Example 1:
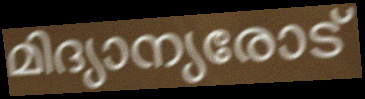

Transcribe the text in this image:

മിദ്യാന്യരോട്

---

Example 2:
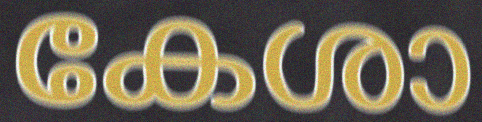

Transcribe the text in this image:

കേശാ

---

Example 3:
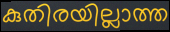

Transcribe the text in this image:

കുതിരയില്ലാത്ത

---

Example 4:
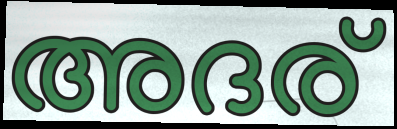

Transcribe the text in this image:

അദര്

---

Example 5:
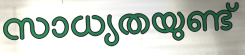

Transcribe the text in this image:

സാധ്യതയുണ്ട്